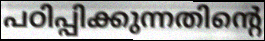
പഠിപ്പിക്കുന്നതിന്റെ